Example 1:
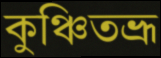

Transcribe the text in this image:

কুঞ্চিতভ্রূ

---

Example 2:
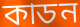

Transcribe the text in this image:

কাডন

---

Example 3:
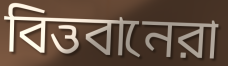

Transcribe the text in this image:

বিত্তবানেরা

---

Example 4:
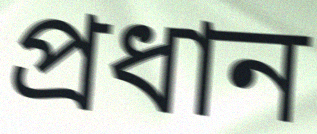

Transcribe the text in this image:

প্রধান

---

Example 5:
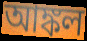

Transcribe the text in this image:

আঙ্কল